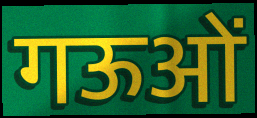
गऊओं